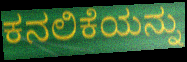
ಕನಲಿಕೆಯನ್ನು